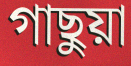
গাছুয়া